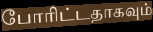
போரிட்டதாகவும்